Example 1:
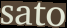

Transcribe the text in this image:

sato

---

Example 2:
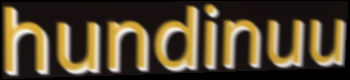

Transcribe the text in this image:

hundinuu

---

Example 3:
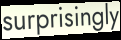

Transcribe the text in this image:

surprisingly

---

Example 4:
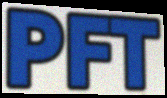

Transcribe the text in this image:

PFT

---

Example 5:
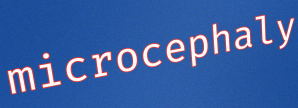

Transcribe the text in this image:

microcephaly